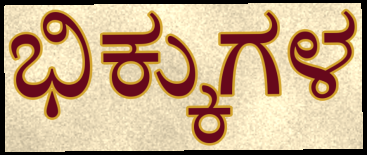
ಭಿಕ್ಕುಗಳ